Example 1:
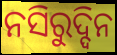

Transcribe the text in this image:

ନସିରୁଦ୍ଦିନ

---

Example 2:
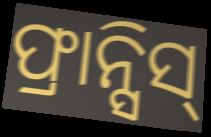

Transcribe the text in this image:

ଫ୍ରାନ୍ସିସ୍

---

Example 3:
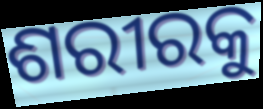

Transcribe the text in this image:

ଶରୀରକୁ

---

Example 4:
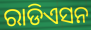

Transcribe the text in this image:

ରାଡିଏସନ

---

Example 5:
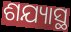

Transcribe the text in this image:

ଶଯ୍ୟାସ୍ଥ